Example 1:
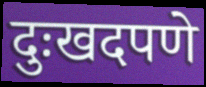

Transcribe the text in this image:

दुःखदपणे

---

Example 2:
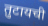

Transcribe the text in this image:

तुटायची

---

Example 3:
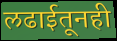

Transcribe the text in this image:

लढाईतूनही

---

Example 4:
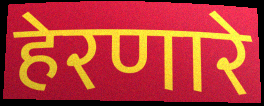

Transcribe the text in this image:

हेरणारे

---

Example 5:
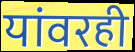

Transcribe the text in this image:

यांवरही